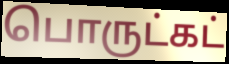
பொருட்கட்